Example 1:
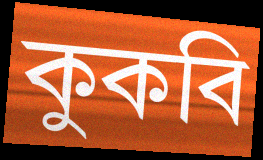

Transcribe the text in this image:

কুকবি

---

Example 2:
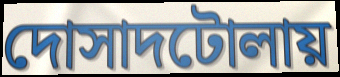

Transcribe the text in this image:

দোসাদটোলায়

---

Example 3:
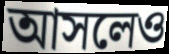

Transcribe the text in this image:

আসলেও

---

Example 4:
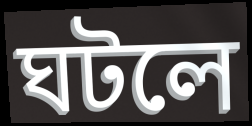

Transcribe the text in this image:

ঘটলে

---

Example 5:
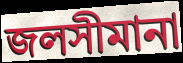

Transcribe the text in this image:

জলসীমানা